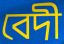
বেদী